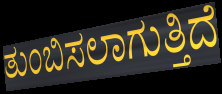
ತುಂಬಿಸಲಾಗುತ್ತಿದೆ